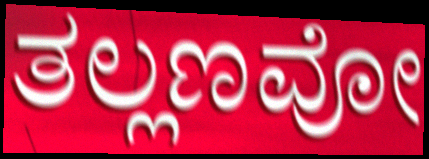
ತಲ್ಲಣವೋ